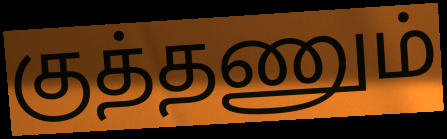
குத்தணும்